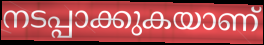
നടപ്പാക്കുകയാണ്